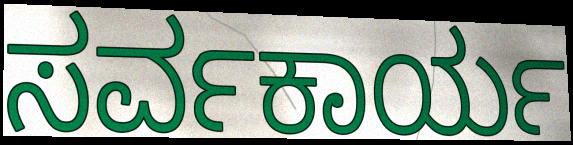
ಸರ್ವಕಾರ್ಯ